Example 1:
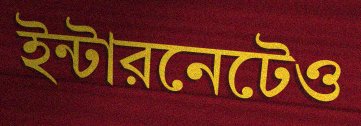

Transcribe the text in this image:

ইন্টারনেটেও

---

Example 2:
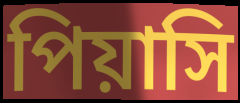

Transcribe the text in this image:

পিয়াসি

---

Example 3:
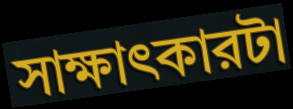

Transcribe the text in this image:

সাক্ষাৎকারটা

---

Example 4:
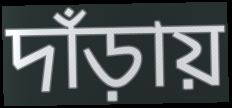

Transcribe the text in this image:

দাঁড়ায়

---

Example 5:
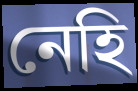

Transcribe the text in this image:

নেহি